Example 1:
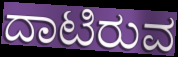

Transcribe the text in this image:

ದಾಟಿರುವ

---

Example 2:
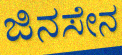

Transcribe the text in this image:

ಜಿನಸೇನ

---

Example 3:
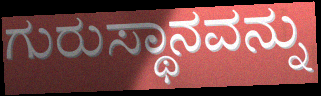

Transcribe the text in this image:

ಗುರುಸ್ಥಾನವನ್ನು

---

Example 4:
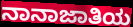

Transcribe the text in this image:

ನಾನಾಜಾತಿಯ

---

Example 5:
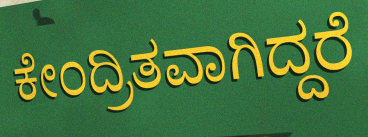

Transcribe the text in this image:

ಕೇಂದ್ರಿತವಾಗಿದ್ದರೆ